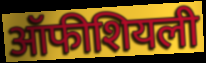
ऑफीशियली